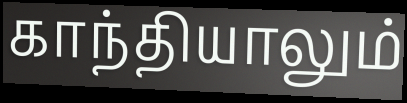
காந்தியாலும்